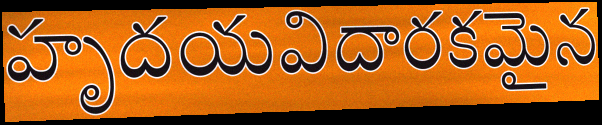
హృదయవిదారకమైన